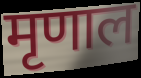
मृणाल